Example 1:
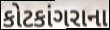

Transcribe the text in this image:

કોટકાંગરાના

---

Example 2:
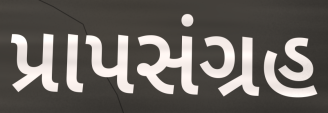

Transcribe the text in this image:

પ્રાપસંગ્રહ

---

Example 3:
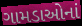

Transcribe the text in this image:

ગામડાઓનાં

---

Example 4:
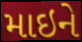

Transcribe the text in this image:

માઇને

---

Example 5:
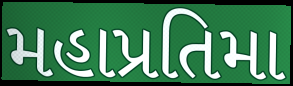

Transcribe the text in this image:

મહાપ્રતિમા